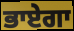
ਭਾਏਗਾ